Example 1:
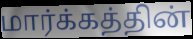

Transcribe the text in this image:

மார்க்கத்தின்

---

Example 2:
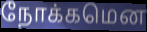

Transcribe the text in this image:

நோக்கமென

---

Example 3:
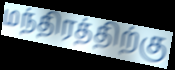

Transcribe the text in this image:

மந்திரத்திற்கு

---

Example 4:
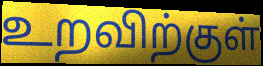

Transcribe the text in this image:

உறவிற்குள்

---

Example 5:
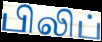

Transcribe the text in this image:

பிலிப்